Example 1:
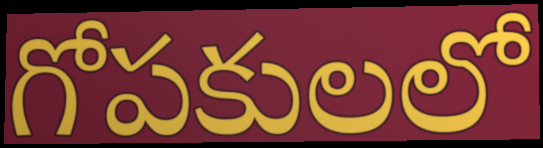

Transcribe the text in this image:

గోపకులలో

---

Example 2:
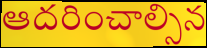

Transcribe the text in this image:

ఆదరించాల్సిన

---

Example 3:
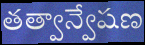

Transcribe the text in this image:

తత్వాన్వేషణ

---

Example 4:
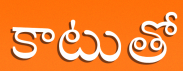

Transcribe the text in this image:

కాటుతో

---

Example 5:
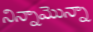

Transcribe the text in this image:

నిన్నామొన్నా